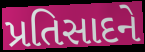
પ્રતિસાદને